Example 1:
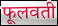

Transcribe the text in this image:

फूलवती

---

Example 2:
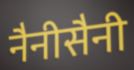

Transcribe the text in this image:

नैनीसैनी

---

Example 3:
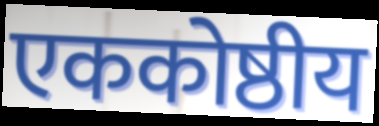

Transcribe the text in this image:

एककोष्ठीय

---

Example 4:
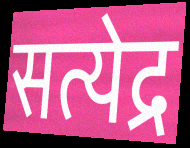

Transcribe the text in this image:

सत्येद्र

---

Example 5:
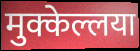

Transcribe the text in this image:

मुक्केल्लया